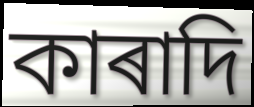
কাৰাদি